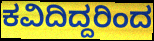
ಕವಿದಿದ್ದರಿಂದ